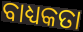
ବାଧ୍ୟକତା